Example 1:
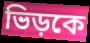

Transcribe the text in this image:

ভিড়কে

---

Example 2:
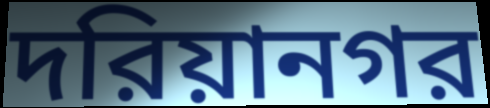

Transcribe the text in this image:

দরিয়ানগর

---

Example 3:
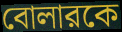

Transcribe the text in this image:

বোলারকে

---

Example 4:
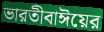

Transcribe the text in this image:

ভারতীবাঈয়ের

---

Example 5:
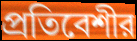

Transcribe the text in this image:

প্রতিবেশীর